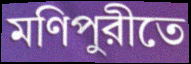
মণিপুরীতে